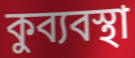
কুব্যবস্থা